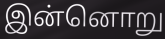
இன்னொறு